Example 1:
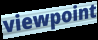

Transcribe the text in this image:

viewpoint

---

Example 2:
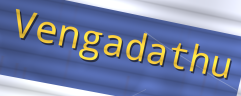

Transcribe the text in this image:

Vengadathu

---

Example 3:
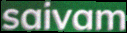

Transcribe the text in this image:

saivam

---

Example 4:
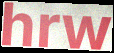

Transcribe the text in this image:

hrw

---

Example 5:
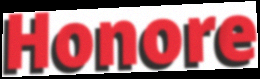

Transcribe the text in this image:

Honore